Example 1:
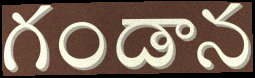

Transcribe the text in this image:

గండాన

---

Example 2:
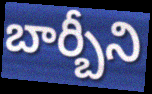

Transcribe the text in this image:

బార్బీని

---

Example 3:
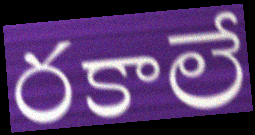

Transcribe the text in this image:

రకాలే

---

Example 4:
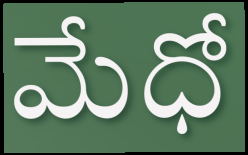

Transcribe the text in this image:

మేధో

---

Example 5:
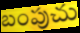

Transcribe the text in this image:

బంపుచు